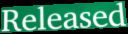
Released